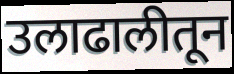
उलाढालीतून